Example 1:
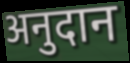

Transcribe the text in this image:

अनुदान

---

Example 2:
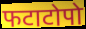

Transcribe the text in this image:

फटाटोपो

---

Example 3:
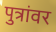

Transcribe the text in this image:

पुत्रांवर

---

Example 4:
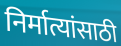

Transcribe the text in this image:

निर्मात्यांसाठी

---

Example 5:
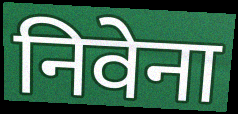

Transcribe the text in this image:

निवेना